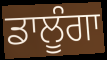
ਡਾਲੂੰਗਾ